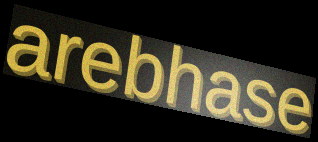
arebhase